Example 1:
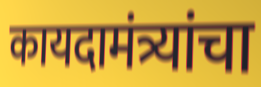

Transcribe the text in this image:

कायदामंत्र्यांचा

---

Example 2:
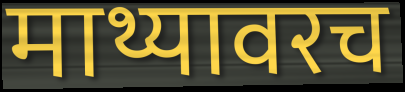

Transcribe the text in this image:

माथ्यावरच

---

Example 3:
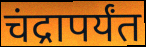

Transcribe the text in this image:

चंद्रापर्यंत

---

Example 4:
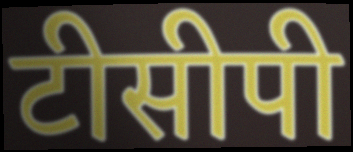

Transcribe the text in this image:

टीसीपी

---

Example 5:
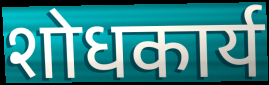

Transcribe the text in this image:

शोधकार्य